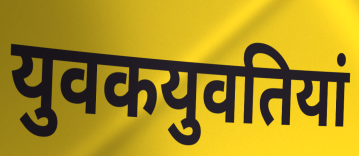
युवकयुवतियां